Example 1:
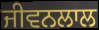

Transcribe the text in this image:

ਜੀਵਨਲਾਲ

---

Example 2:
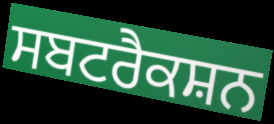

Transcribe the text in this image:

ਸਬਟਰੈਕਸ਼ਨ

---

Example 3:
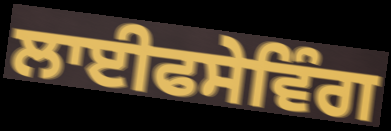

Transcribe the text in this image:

ਲਾਈਫਸੇਵਿੰਗ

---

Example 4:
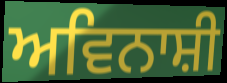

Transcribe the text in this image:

ਅਵਿਨਾਸ਼ੀ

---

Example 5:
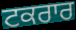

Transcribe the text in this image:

ਟਕਰਾਰ